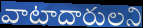
వాటాదారులని